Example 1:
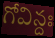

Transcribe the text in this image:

గోవిన్దః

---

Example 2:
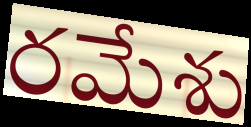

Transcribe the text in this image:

రమేశు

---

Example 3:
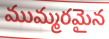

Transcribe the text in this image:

ముమ్మరమైన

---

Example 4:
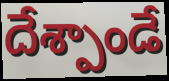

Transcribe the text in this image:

దేశ్పాండే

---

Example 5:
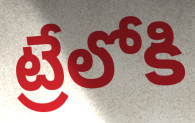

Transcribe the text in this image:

ట్రేలోకి